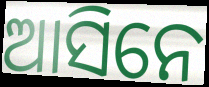
ଆସିନେ